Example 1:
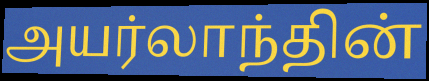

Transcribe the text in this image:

அயர்லாந்தின்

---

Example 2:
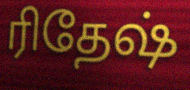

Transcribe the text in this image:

ரிதேஷ்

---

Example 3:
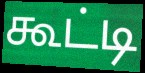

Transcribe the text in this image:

கூட்டி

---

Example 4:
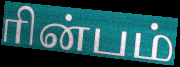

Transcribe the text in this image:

ரின்பம்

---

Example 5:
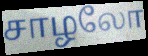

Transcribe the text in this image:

சாழலோ